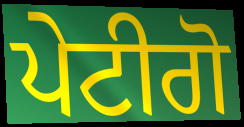
ਪੇਟੀਗੋ